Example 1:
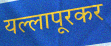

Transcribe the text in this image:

यल्लापूरकर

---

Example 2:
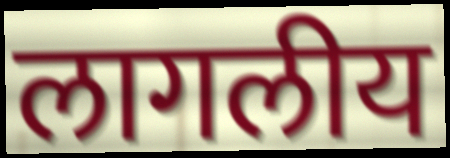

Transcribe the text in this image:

लागलीय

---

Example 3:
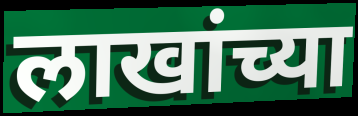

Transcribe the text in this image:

लाखांच्या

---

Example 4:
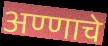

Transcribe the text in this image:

अण्णाचे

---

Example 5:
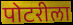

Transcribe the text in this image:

पोटरीला